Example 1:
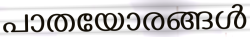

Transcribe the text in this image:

പാതയോരങ്ങൾ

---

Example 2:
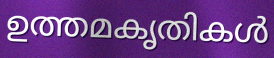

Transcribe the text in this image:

ഉത്തമകൃതികൾ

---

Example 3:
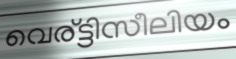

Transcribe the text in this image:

വെര്ട്ടിസീലിയം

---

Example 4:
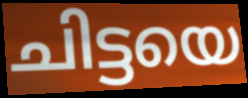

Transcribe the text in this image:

ചിട്ടയെ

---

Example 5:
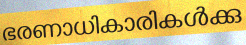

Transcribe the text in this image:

ഭരണാധികാരികൾക്കു